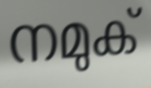
നമുക്